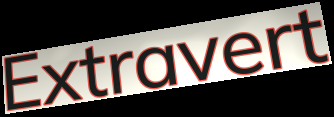
Extravert